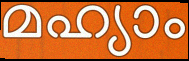
മഹ്യാം